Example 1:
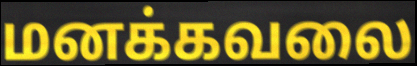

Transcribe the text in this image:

மனக்கவலை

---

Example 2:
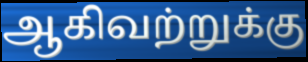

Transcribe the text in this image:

ஆகிவற்றுக்கு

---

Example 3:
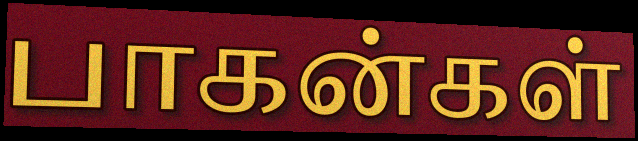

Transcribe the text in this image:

பாகன்கள்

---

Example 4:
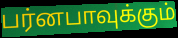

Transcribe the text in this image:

பர்னபாவுக்கும்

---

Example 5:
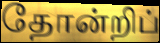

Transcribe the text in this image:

தோன்றிப்